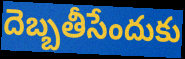
దెబ్బతీసేందుకు